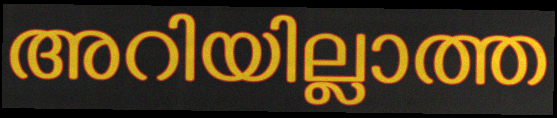
അറിയില്ലാത്ത